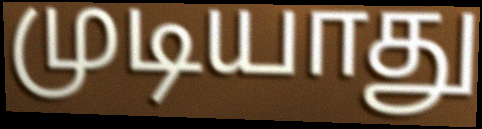
முடியாது